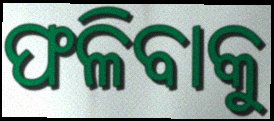
ଫଳିବାକୁ